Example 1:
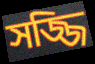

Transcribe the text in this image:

সজ্জি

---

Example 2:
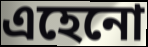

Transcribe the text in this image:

এহেনো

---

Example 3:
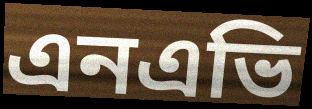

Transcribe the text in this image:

এনএভি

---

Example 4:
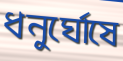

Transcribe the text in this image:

ধনুর্ঘোষে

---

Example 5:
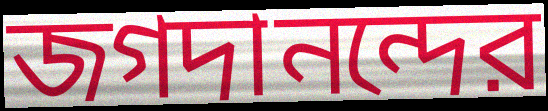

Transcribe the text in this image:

জগদানন্দের